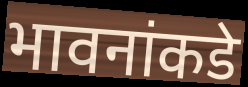
भावनांकडे